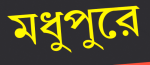
মধুপুরে